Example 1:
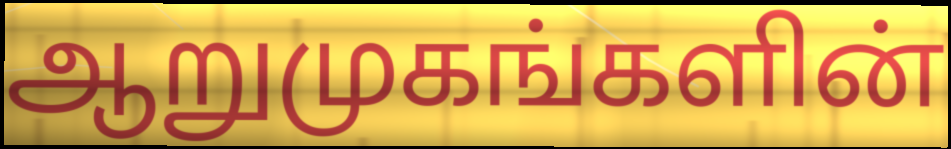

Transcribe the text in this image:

ஆறுமுகங்களின்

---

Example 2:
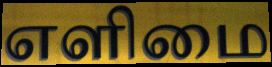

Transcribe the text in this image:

எளிமை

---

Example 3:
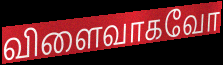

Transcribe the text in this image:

விளைவாகவோ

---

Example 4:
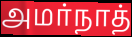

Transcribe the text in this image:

அமர்நாத்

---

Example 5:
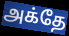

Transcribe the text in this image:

அக்தே